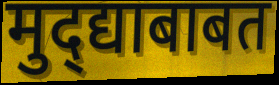
मुद्द्याबाबत